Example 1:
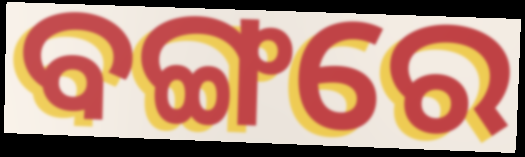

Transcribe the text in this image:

ବଙ୍ଗରେ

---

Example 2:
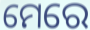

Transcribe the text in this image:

ମେରେ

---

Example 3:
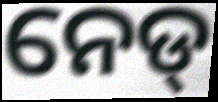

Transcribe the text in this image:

ନେଡ୍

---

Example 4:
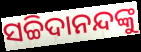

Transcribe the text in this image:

ସଚ୍ଚିଦାନନ୍ଦଙ୍କୁ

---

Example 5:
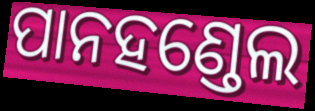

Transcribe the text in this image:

ପାନହଣ୍ଡେଲ